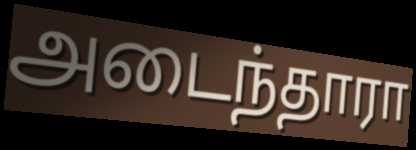
அடைந்தாரா